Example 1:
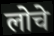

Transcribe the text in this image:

लोचे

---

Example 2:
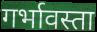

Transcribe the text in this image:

गर्भावस्ता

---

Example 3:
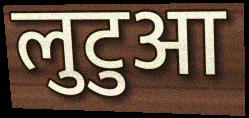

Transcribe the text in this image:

लुटुआ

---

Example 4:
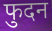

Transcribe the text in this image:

फुदन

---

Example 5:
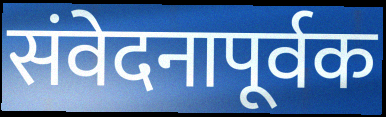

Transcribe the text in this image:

संवेदनापूर्वक